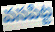
వసపిట్ట